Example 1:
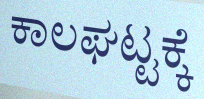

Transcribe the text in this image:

ಕಾಲಘಟ್ಟಕ್ಕೆ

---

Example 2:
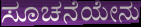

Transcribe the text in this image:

ಸೂಚನೆಯೇನು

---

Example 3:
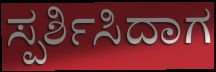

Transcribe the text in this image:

ಸ್ಪರ್ಶಿಸಿದಾಗ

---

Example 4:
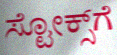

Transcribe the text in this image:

ಸ್ಟೋಕ್ಸ್‌ಗೆ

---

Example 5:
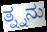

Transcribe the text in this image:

ತ್ನ್ನನು